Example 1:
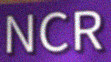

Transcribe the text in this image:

NCR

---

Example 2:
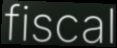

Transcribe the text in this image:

fiscal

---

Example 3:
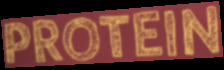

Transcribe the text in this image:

PROTEIN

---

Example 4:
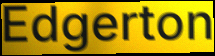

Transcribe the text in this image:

Edgerton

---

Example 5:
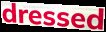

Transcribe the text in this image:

dressed